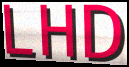
LHD